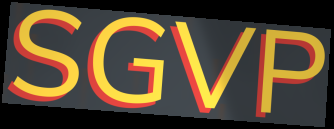
SGVP